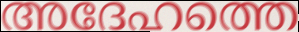
അദേഹത്തെ